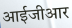
आईजीआर